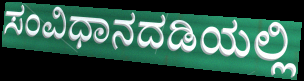
ಸಂವಿಧಾನದಡಿಯಲ್ಲಿ